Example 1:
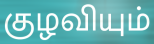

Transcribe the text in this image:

குழவியும்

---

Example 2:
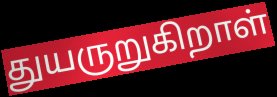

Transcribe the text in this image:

துயருறுகிறாள்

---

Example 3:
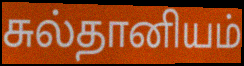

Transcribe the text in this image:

சுல்தானியம்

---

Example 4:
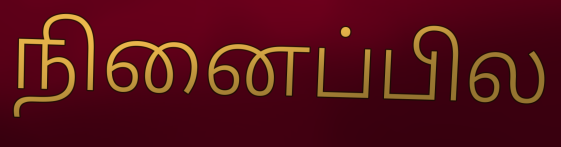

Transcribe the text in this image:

நினைப்பில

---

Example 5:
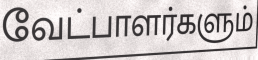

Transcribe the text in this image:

வேட்பாளர்களும்